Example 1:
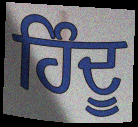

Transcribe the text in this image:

ਹਿੰਦੂ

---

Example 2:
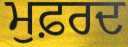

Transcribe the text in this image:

ਮੁਫ਼ਰਦ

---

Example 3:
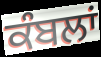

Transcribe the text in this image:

ਕੰਬਲਾਂ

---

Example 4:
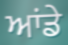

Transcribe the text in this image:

ਆਂਡੇ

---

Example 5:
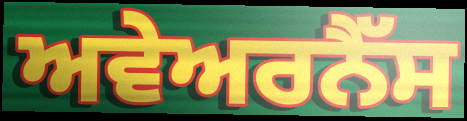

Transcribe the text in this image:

ਅਵੇਅਰਨੈੱਸ